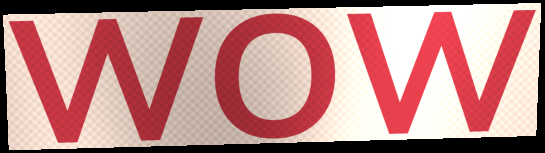
WOW